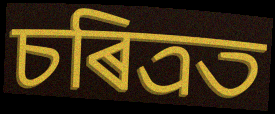
চৰিত্ৰত